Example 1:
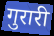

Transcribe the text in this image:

गुरारी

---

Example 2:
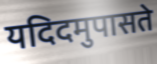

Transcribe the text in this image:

यदिदमुपासते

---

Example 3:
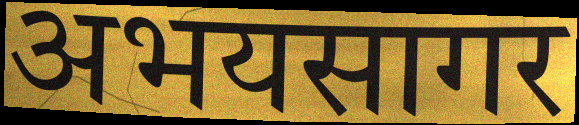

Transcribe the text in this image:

अभयसागर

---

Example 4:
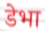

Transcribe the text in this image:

डेभा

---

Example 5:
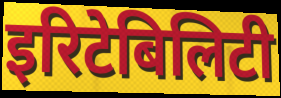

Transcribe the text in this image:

इरिटेबिलिटी